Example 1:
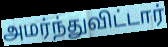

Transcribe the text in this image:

அமர்ந்துவிட்டார்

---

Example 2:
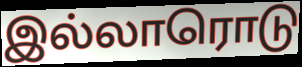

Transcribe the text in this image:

இல்லாரொடு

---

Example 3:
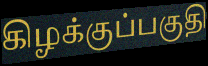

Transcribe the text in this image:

கிழக்குப்பகுதி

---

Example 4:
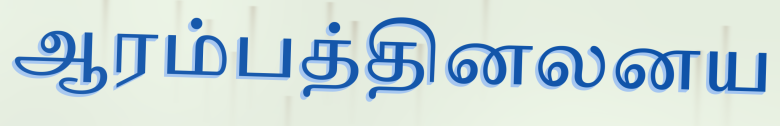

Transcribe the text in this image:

ஆரம்பத்தினலனய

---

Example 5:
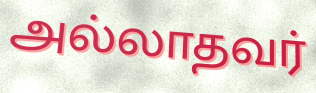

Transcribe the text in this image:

அல்லாதவர்